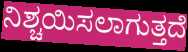
ನಿಶ್ಚಯಿಸಲಾಗುತ್ತದೆ